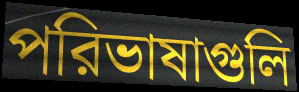
পরিভাষাগুলি